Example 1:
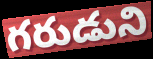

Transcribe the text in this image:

గరుడుని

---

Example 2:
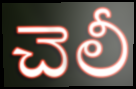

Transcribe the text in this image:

చెలీ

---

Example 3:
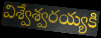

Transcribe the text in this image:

విశ్వేశ్వరయ్యకి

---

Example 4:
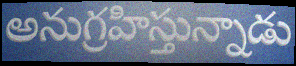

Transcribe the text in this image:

అనుగ్రహిస్తున్నాడు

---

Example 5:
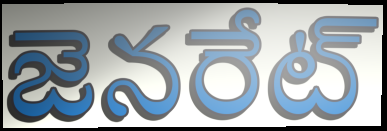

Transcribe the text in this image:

జెనరేట్